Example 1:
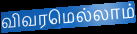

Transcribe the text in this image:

விவரமெல்லாம்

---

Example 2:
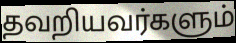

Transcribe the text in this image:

தவறியவர்களும்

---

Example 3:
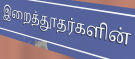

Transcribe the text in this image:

இறைத்தூதர்களின்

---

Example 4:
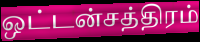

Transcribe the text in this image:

ஒட்டன்சத்திரம்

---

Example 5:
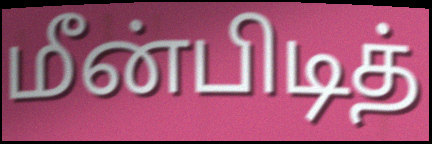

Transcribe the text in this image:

மீன்பிடித்